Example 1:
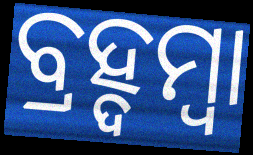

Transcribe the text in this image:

ବ୍ରହ୍ଦମ୍ବା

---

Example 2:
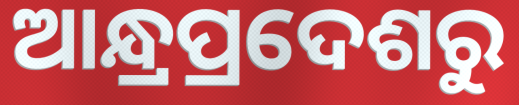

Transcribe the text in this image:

ଆନ୍ଧ୍ରପ୍ରଦେଶରୁ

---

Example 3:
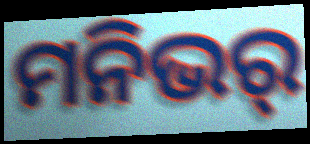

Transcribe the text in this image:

ମନିଭର୍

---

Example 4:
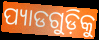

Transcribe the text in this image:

ପ୍ୟାଡଗୁଡ଼ିକୁ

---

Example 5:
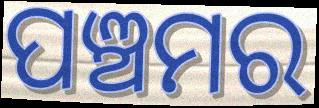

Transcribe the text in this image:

ପଞ୍ଚମର